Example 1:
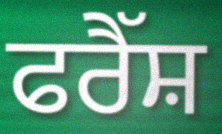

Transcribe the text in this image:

ਫਰੈੱਸ਼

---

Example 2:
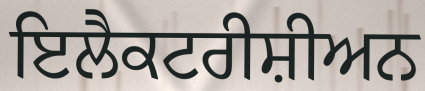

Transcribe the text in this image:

ਇਲੈਕਟਰੀਸ਼ੀਅਨ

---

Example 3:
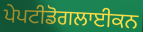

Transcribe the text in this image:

ਪੇਪਟੀਡੋਗਲਾਈਕਨ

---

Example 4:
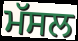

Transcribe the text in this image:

ਮੱਸਲ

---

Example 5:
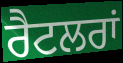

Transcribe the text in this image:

ਰੈਟਲਰਾਂ